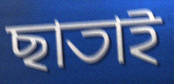
ছাতাই